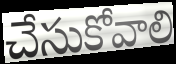
చేసుకోవాలి